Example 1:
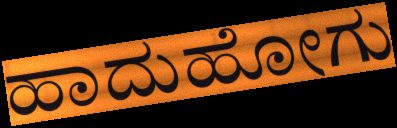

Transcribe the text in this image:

ಹಾದುಹೋಗು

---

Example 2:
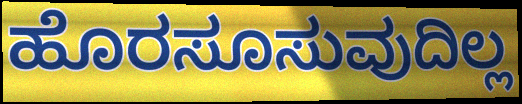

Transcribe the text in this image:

ಹೊರಸೂಸುವುದಿಲ್ಲ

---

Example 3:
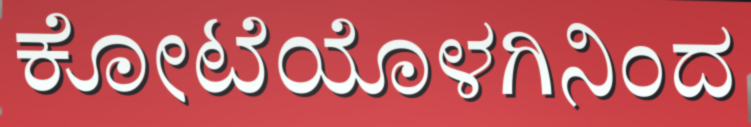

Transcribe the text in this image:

ಕೋಟೆಯೊಳಗಿನಿಂದ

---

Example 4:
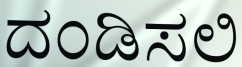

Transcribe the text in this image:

ದಂಡಿಸಲಿ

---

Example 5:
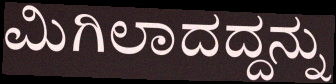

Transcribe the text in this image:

ಮಿಗಿಲಾದದ್ದನ್ನು